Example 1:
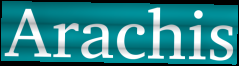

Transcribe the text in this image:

Arachis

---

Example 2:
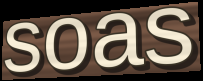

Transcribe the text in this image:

soas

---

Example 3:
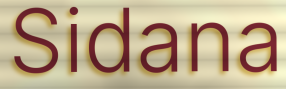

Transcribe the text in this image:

Sidana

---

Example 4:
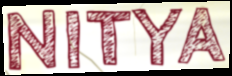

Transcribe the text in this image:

NITYA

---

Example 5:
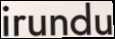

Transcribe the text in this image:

irundu